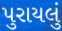
પુરાયલું